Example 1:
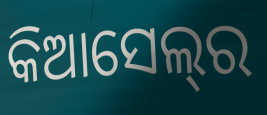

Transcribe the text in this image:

କିଆସେଲ୍‌ର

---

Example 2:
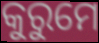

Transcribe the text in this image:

କୁରୁମେ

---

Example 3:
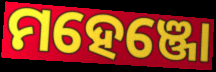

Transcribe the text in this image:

ମହେଞ୍ଜୋ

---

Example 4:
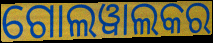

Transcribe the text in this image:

ଗୋଲୱାଲକର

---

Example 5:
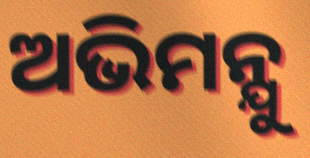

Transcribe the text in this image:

ଅଭିମନ୍ଯୁ